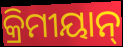
କ୍ରିମୀୟାନ୍